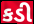
કડી